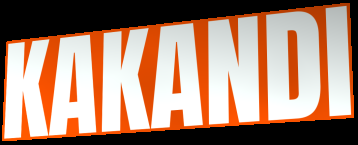
KAKANDI